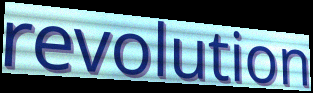
revolution